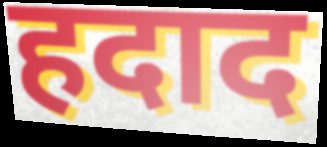
हदाद